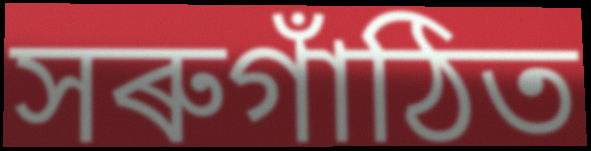
সৰুগাঁঠিত